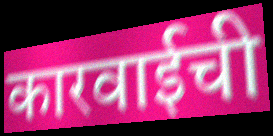
कारवाईची